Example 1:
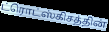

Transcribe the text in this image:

ட்ரொட்ஸ்கிசத்தின்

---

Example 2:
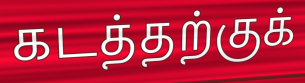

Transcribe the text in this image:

கடத்தற்குக்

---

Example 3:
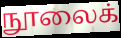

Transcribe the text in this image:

நூலைக்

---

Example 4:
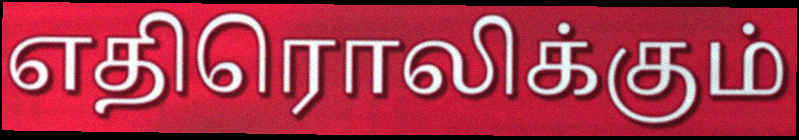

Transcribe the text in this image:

எதிரொலிக்கும்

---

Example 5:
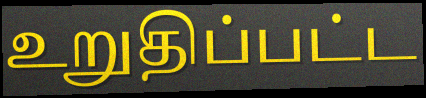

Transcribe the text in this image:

உறுதிப்பட்ட